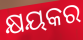
କ୍ଷୟକର